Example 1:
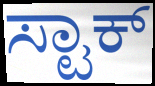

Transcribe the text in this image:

ಸ್ಟಾಕ್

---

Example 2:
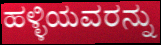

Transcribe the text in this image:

ಹಳ್ಳಿಯವರನ್ನು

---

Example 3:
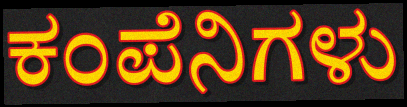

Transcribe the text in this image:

ಕಂಪೆನಿಗಳು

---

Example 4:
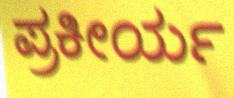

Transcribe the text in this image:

ಪ್ರಕೀರ್ಯ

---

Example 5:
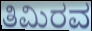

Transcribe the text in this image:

ತಿಮಿರವ